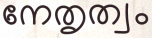
നേതൃത്വം